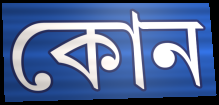
কোন